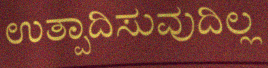
ಉತ್ಪಾದಿಸುವುದಿಲ್ಲ